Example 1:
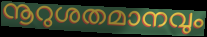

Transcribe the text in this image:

നൂറുശതമാനവും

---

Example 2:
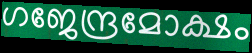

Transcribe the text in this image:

ഗജേന്ദ്രമോക്ഷം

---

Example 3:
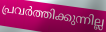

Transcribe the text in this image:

പ്രവർത്തിക്കുന്നില്ല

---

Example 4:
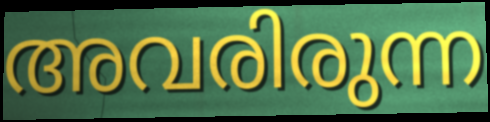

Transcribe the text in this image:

അവരിരുന്ന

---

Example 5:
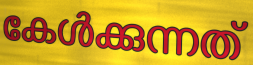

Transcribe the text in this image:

കേൾക്കുന്നത്